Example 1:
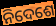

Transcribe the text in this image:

ନିଦେଶେ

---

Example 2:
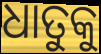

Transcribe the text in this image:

ଧାତୁକୁ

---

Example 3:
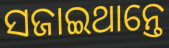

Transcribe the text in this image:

ସଜାଇଥାନ୍ତେ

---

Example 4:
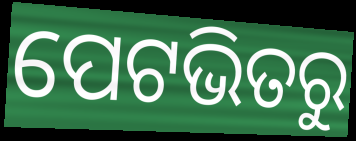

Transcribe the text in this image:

ପେଟଭିତରୁ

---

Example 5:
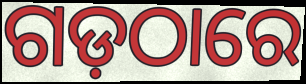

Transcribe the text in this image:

ଗଡ଼ଠାରେ